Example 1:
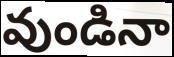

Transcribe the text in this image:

వుండినా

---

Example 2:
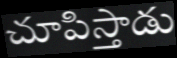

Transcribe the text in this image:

చూపిస్తాడు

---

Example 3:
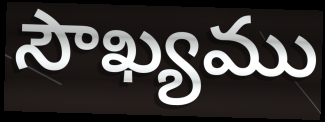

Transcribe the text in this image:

సౌఖ్యము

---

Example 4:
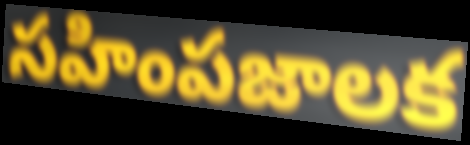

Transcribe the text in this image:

సహింపజాలక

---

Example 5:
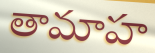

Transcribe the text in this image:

తామాహ